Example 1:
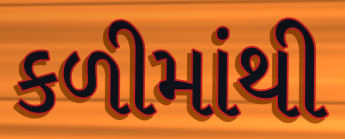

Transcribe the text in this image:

કળીમાંથી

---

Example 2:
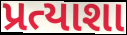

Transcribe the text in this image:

પ્રત્યાશા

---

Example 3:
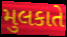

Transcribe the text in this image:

મુલકાતે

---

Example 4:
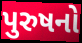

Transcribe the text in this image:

પુરુષનો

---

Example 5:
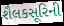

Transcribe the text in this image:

શૈલકસૂરિની